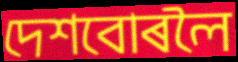
দেশবোৰলৈ